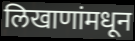
लिखाणांमधून